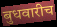
बुधवारीच